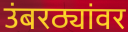
उंबरठ्यांवर